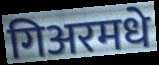
गिअरमधे